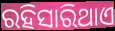
ରହିସାରିଥାଏ